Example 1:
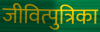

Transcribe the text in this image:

जीवित्पुत्रिका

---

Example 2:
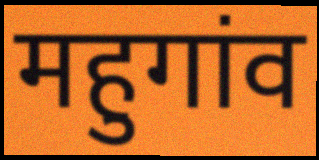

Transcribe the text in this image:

महुगांव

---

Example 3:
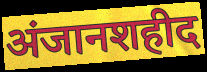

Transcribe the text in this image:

अंजानशहीद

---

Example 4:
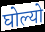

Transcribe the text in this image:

घोल्यो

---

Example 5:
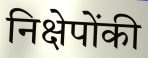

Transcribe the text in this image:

निक्षेपोंकी